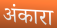
अंकारा